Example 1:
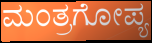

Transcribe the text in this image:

ಮಂತ್ರಗೋಪ್ಯ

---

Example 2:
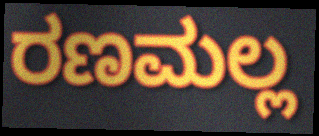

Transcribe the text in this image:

ರಣಮಲ್ಲ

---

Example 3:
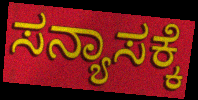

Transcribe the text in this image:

ಸನ್ಯಾಸಕ್ಕೆ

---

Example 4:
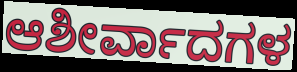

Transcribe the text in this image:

ಆಶೀರ್ವಾದಗಳ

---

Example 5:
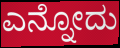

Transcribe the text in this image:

ಎನ್ನೋದು